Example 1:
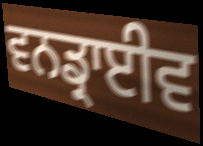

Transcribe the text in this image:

ਵਨਡ੍ਰਾਈਵ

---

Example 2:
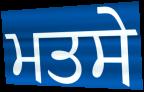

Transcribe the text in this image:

ਮਤਸੇ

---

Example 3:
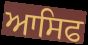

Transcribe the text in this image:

ਆਸਿਫ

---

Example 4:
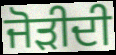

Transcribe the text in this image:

ਜੋੜੀਦੀ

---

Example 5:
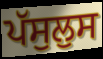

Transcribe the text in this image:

ਪੱਸੁਲੁਸ